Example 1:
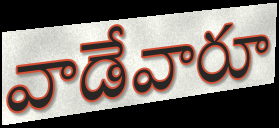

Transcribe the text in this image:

వాడేవారూ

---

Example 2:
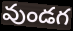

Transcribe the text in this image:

వుండగ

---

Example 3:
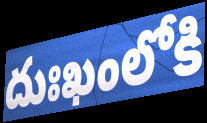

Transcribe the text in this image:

దుఃఖంలోకి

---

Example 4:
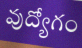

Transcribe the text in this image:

వుద్యోగం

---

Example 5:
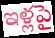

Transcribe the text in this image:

ఇళ్లపై